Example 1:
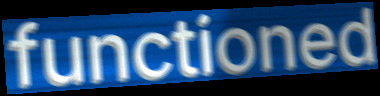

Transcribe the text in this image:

functioned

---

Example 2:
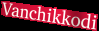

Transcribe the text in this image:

Vanchikkodi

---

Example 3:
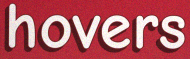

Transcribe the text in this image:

hovers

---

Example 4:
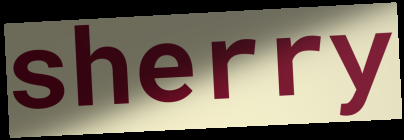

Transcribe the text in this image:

sherry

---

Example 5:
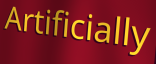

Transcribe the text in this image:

Artificially